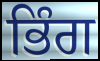
ਭਿੰਗ